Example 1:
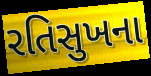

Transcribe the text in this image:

રતિસુખના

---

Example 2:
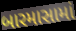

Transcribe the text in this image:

બારમાસામાં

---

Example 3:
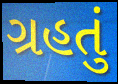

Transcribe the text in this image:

ગ્રહતું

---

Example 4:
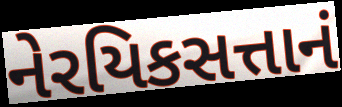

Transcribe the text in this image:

નેરયિકસત્તાનં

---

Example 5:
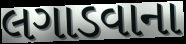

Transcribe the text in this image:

લગાડવાના